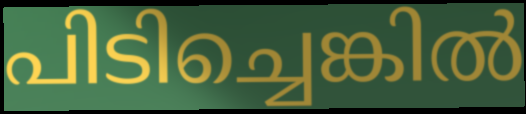
പിടിച്ചെങ്കിൽ